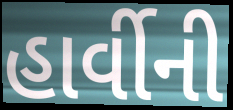
હાર્વીની